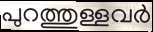
പുറത്തുള്ളവർ